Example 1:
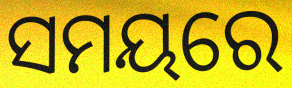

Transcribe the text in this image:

ସମୟରେ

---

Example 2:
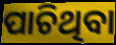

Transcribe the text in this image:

ପାଚିଥିବା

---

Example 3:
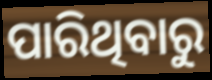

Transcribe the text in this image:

ପାରିଥିବାରୁ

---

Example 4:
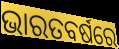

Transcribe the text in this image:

ଭାରତବର୍ଷରେ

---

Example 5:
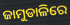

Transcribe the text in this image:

ଜାମୁଡାଳିରେ